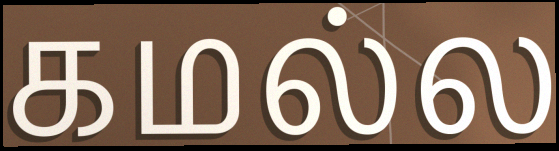
கமல்ல